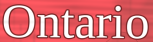
Ontario